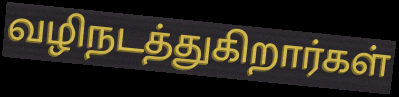
வழிநடத்துகிறார்கள்